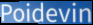
Poidevin